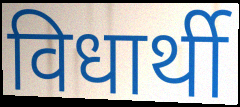
विधार्थी